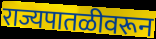
राज्यपातळीवरून